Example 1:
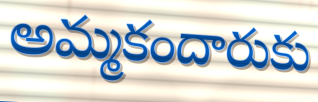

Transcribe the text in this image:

అమ్మకందారుకు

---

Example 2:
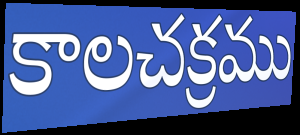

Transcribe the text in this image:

కాలచక్రము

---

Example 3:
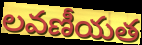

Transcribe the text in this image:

లవణీయత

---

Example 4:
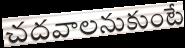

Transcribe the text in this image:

చదవాలనుకుంటే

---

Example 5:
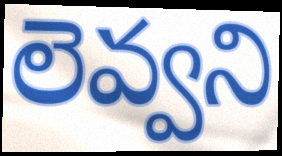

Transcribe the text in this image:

లెవ్వని